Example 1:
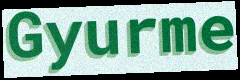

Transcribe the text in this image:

Gyurme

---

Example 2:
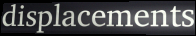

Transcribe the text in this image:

displacements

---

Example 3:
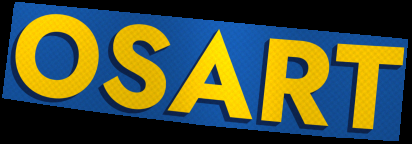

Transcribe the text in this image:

OSART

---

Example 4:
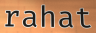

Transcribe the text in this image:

rahat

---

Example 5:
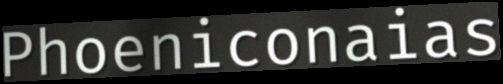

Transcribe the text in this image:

Phoeniconaias